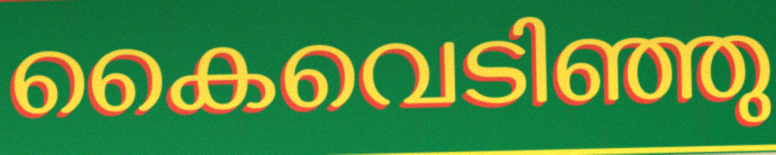
കൈവെടിഞ്ഞു